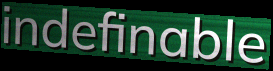
indefinable